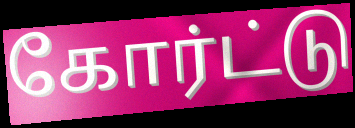
கோர்ட்டு